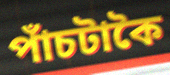
পাঁচটাকৈ